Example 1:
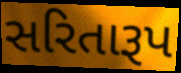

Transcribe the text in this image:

સરિતારૂપ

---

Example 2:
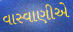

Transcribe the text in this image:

વાસ્વાણીએ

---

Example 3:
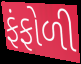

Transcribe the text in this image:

ફંફોળી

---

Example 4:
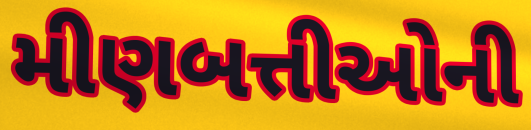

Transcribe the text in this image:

મીણબત્તીઓની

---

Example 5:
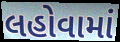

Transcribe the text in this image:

લહોવામાં